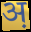
अ़